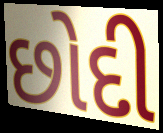
છોદી